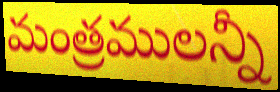
మంత్రములన్నీ